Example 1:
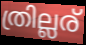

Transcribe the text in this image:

ത്രില്ലര്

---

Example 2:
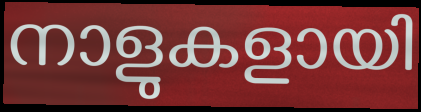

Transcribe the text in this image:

നാളുകളായി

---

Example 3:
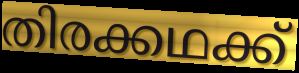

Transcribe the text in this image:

തിരക്കഥക്ക്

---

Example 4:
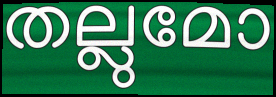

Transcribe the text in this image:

തല്ലുമോ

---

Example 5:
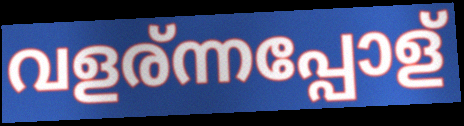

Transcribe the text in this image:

വളര്ന്നപ്പോള്